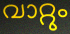
വാറ്റും